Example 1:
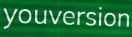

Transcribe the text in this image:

youversion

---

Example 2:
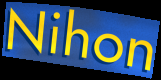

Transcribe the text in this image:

Nihon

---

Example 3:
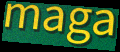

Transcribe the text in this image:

maga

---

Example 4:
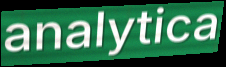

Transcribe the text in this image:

analytica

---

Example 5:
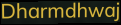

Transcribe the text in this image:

Dharmdhwaj